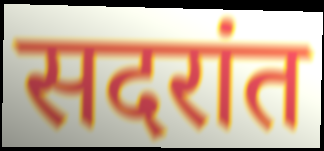
सदरांत